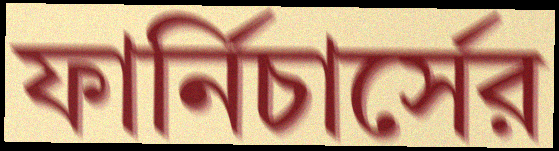
ফার্নিচার্সের